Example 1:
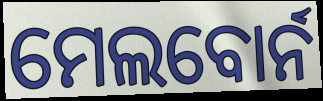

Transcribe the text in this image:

ମେଲବୋର୍ନ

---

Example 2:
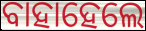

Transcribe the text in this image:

ବାହାହେଲେ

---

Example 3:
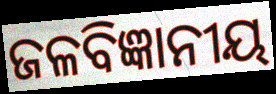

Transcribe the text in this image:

ଜଳବିଜ୍ଞାନୀୟ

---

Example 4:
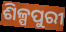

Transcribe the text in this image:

ଶିଳ୍ପପୁରୀ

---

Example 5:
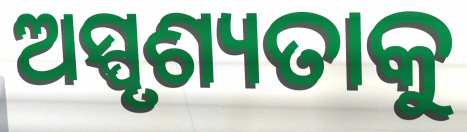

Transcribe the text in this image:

ଅସ୍ପୃଶ୍ୟତାକୁ